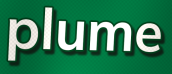
plume